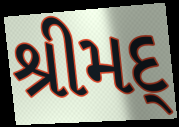
શ્રીમદ્‍